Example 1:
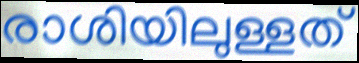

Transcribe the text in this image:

രാശിയിലുള്ളത്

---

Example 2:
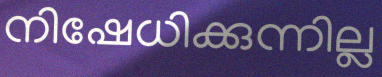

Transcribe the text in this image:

നിഷേധിക്കുന്നില്ല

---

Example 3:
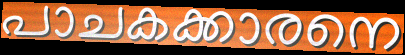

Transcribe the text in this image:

പാചകക്കാരനെ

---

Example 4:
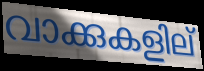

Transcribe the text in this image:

വാക്കുകളില്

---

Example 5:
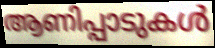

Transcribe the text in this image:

ആണിപ്പാടുകൾ